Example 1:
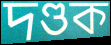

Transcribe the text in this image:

দণ্ডক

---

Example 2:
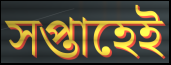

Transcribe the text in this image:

সপ্তাহেই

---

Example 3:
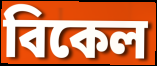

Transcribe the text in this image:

বিকেল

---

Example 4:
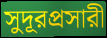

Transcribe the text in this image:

সুদূরপ্রসারী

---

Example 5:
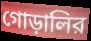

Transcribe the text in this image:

গোড়ালির